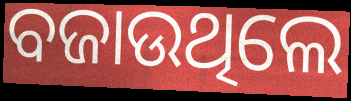
ବଜାଉଥିଲେ